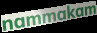
nammakam